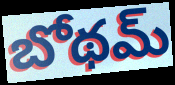
బోథమ్